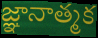
జ్ఞానాత్మక